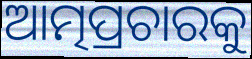
ଆତ୍ମପ୍ରଚାରକୁ